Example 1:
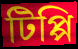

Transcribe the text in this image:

টিপ্পি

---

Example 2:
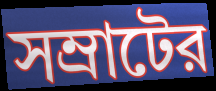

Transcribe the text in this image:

সম্রাটের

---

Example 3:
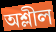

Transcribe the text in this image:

অশ্লীল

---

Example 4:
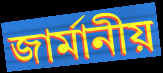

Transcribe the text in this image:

জার্মানীয়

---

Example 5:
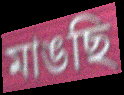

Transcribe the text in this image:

মাঙছি